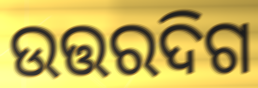
ଉତ୍ତରଦିଗ